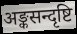
अङ्कसन्दृष्टि